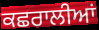
ਕਛਰਾਲੀਆਂ